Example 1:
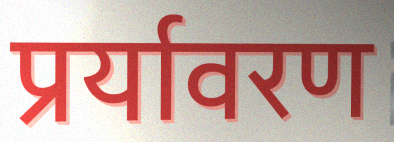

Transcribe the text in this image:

प्रर्यावरण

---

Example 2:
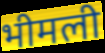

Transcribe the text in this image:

भीमली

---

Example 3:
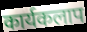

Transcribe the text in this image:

कार्यकलाप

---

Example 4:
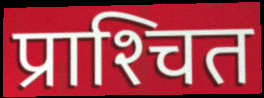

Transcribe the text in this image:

प्राश्चित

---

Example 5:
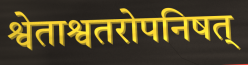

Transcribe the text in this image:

श्वेताश्वतरोपनिषत्